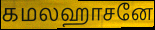
கமலஹாசனே